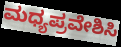
ಮಧ್ಯಪ್ರವೇಶಿಸಿ